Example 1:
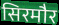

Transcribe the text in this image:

सिरमौर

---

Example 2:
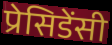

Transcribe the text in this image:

प्रेसिडेंसी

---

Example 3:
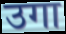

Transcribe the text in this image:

उगा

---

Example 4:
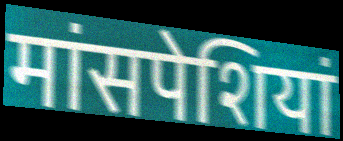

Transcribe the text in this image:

मांसपेशियां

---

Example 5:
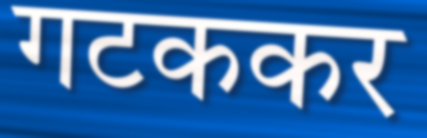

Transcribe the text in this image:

गटककर